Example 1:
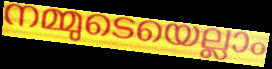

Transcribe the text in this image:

നമ്മുടെയെല്ലാം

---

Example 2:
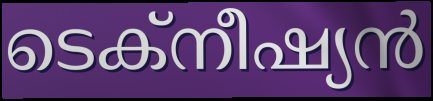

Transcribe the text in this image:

ടെക്നീഷ്യൻ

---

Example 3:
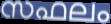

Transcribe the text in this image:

സഫലം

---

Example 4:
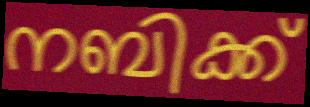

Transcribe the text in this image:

നബിക്ക്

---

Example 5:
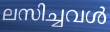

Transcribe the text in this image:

ലസിച്ചവൾ